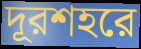
দূরশহরে